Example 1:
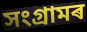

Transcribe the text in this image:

সংগ্ৰামৰ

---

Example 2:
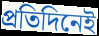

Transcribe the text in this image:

প্ৰতিদিনেই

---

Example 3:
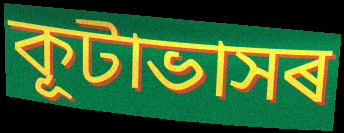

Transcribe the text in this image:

কূটাভাসৰ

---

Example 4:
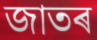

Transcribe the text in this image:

জাতৰ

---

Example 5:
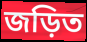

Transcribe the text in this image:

জড়িত